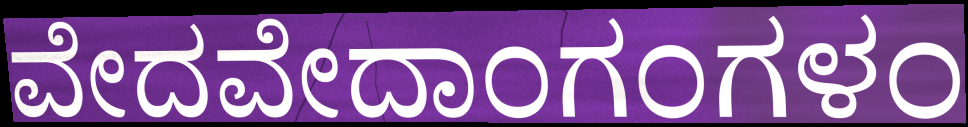
ವೇದವೇದಾಂಗಂಗಳಂ